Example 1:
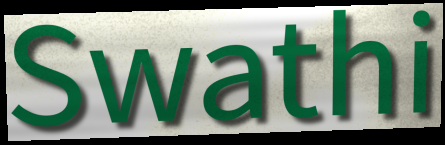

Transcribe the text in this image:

Swathi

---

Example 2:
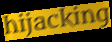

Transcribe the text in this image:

hijacking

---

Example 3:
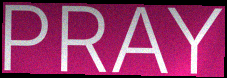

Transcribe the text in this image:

PRAY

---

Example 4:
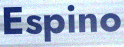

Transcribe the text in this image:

Espino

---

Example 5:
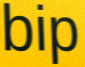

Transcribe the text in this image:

bip